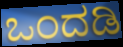
ಒಂದಡಿ